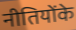
नीतियोंके